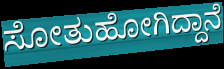
ಸೋತುಹೋಗಿದ್ದಾನೆ